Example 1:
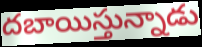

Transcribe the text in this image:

దబాయిస్తున్నాడు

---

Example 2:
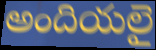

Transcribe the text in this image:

అందియలై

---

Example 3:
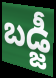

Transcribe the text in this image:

బడ్జీ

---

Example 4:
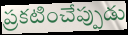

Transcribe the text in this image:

ప్రకటించేప్పుడు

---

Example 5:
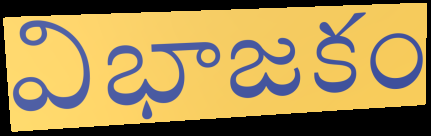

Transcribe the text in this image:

విభాజకం